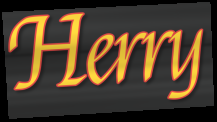
Herry